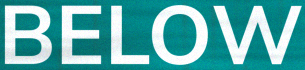
BELOW